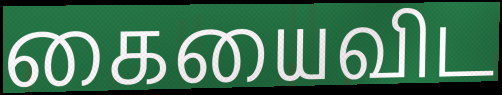
கையைவிட